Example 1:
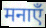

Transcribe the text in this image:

मनाएँ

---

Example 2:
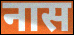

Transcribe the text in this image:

नास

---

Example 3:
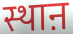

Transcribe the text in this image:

स्थाऩ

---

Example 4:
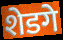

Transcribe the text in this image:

शेडगे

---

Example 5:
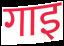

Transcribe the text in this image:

गाइ